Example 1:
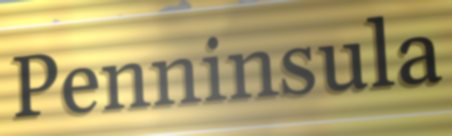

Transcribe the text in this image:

Penninsula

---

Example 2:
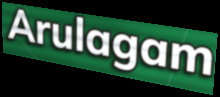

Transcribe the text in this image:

Arulagam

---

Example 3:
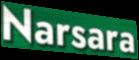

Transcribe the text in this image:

Narsara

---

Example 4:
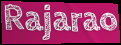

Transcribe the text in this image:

Rajarao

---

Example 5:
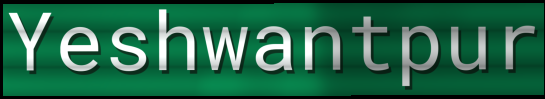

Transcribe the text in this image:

Yeshwantpur